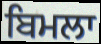
ਬਿਮਲਾ